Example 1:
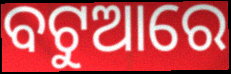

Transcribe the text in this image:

ବଟୁଆରେ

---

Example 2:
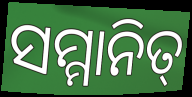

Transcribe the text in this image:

ସମ୍ମାନିତ୍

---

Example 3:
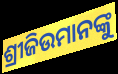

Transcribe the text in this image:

ଶ୍ରୀଜିଉମାନଙ୍କୁ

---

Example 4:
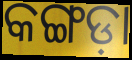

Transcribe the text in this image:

କଙ୍ଗଡ଼ା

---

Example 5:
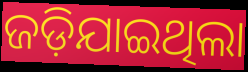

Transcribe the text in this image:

ଜଡ଼ିଯାଇଥିଲା